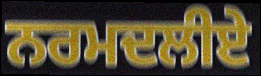
ਨਰਮਦਲੀਏ